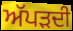
ਅੱਪੜਦੀ